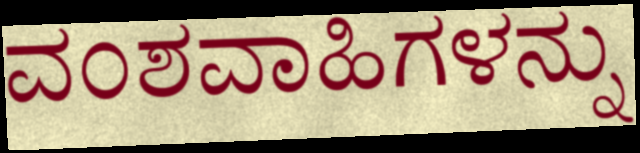
ವಂಶವಾಹಿಗಳನ್ನು